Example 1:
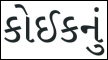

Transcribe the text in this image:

કોઈકનું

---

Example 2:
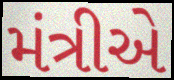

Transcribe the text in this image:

મંત્રીએ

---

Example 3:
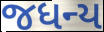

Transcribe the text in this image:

જધન્ય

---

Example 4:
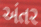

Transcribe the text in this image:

અંતર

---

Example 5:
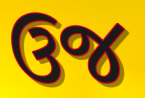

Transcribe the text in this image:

ઉજ